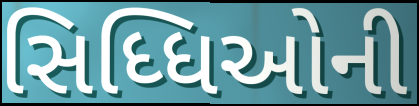
સિધ્ધિઓની